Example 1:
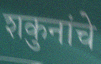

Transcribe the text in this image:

शकुनांचे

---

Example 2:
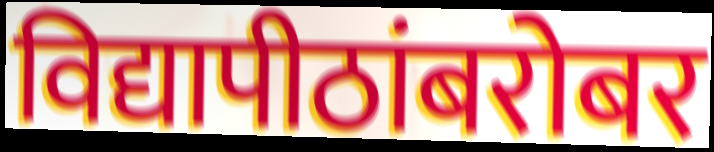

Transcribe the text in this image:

विद्यापीठांबरोबर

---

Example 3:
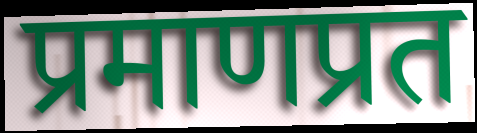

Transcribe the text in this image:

प्रमाणप्रत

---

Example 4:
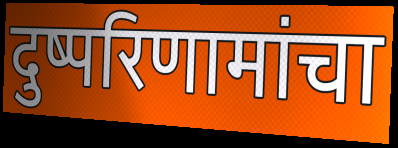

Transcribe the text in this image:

दुष्परिणामांचा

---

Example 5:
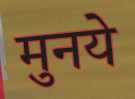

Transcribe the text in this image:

मुनये